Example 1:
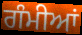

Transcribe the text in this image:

ਗੰਮੀਆਂ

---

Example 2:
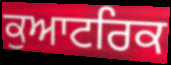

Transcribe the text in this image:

ਕੁਆਟਰਿਕ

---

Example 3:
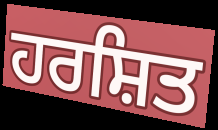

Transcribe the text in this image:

ਹਰਸ਼ਿਤ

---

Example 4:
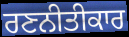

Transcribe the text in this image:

ਰਣਨੀਤੀਕਾਰ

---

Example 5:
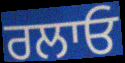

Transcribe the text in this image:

ਰਲਾਓ